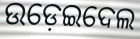
ଉଡ଼େଇଦେଲ